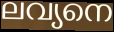
ലവ്യനെ